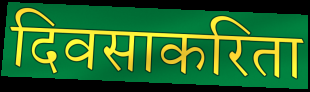
दिवसाकरिता